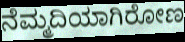
ನೆಮ್ಮದಿಯಾಗಿರೋಣ